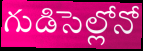
గుడిసెల్లోనో